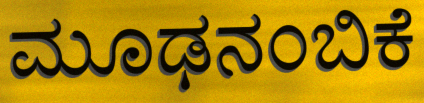
ಮೂಢನಂಬಿಕೆ